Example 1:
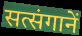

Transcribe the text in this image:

सत्संगानें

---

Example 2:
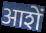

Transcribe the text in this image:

आशें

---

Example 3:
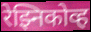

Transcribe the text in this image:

रेझ्निकोव्ह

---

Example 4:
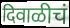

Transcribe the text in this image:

दिवाळीचं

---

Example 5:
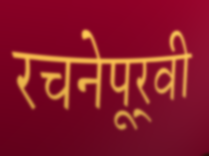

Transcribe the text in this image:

रचनेपूर्वी